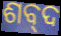
ଶବ୍‌ଦ